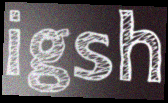
igsh